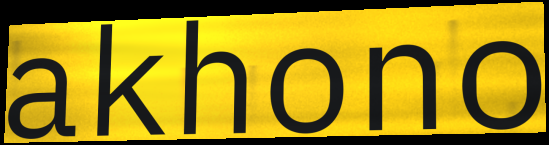
akhono